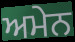
ਅਮੇਨ